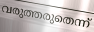
വരുത്തരുതെന്ന്